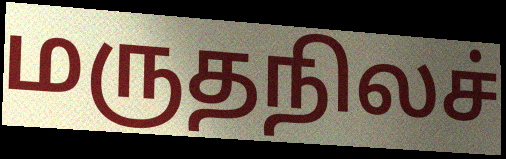
மருதநிலச்